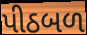
પીઠબળ